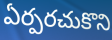
ఏర్పరచుకొని